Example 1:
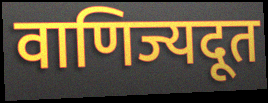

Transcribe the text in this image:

वाणिज्यदूत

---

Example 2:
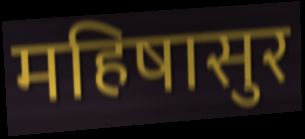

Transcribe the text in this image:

महिषासुर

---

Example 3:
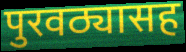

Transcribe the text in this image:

पुरवठ्यासह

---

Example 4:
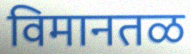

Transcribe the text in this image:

विमानतळ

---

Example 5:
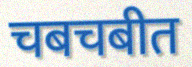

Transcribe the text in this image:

चबचबीत